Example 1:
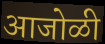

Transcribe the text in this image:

आजोळी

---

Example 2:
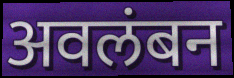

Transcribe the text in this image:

अवलंबन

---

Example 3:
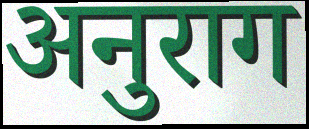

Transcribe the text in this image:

अनुराग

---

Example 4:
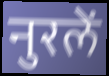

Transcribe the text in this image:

नुरलें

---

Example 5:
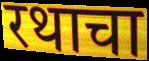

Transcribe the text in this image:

रथाचा